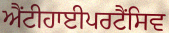
ਐਂਟੀਹਾਈਪਰਟੈਂਸਿਵ